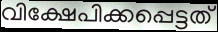
വിക്ഷേപിക്കപ്പെട്ടത്